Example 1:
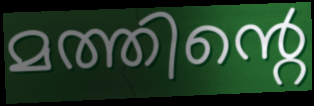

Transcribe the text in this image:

മത്തിന്റെ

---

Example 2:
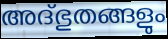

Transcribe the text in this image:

അദ്ഭുതങ്ങളും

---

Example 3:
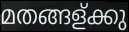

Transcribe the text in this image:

മതങ്ങള്ക്കു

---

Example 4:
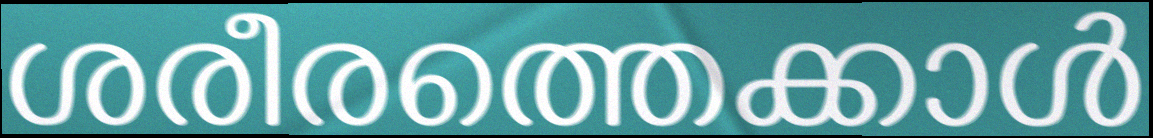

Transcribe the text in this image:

ശരീരത്തെക്കാൾ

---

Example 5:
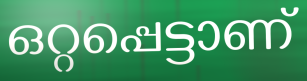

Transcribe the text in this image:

ഒറ്റപ്പെട്ടാണ്